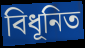
বিধূনিত